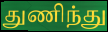
துணிந்து